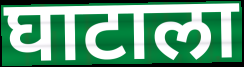
घाटाला